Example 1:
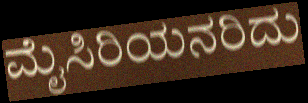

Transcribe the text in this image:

ಮೈಸಿರಿಯನರಿದು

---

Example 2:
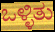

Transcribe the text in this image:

ಒಳ್ಳಿತು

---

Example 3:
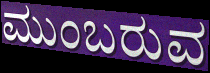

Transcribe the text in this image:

ಮುಂಬರುವ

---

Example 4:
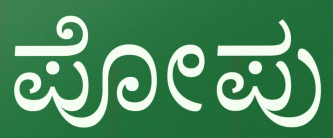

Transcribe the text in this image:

ಪೋಪು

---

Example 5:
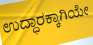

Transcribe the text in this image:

ಉದ್ಧಾರಕ್ಕಾಗಿಯೇ